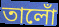
তালোঁ